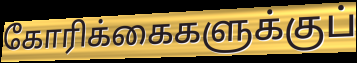
கோரிக்கைகளுக்குப்